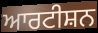
ਆਰਟੀਸ਼ਨ